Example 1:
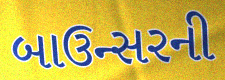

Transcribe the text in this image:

બાઉન્સરની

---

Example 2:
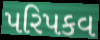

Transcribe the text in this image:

પરિપકવ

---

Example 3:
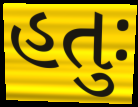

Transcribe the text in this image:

હતુઃ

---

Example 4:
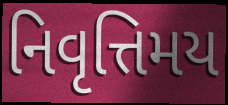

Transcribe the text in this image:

નિવૃત્તિમય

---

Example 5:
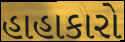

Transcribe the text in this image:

હાહાકારો